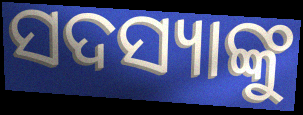
ସଦସ୍ୟାଙ୍କୁ